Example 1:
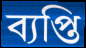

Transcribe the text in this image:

ব্যপ্তি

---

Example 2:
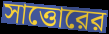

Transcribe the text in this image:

সাত্তোরের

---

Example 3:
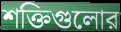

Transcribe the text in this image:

শক্তিগুলোর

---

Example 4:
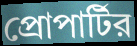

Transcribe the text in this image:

প্রোপার্টির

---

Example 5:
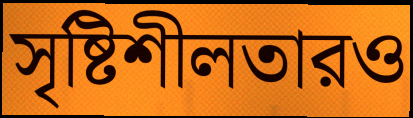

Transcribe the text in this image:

সৃষ্টিশীলতারও